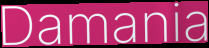
Damania